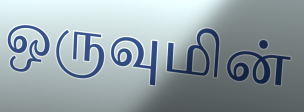
ஒருவுமின்